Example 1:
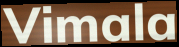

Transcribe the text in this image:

Vimala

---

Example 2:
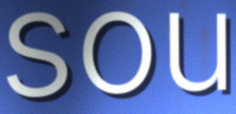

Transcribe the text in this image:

sou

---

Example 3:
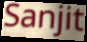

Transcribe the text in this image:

Sanjit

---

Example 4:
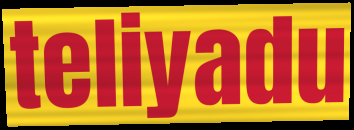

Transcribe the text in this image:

teliyadu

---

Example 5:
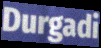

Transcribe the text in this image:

Durgadi